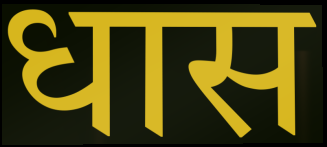
धास